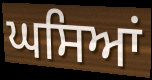
ਘਸਿਆਂ